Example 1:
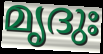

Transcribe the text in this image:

മൃദുഃ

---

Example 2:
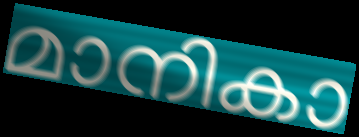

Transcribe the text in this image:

മാനികാ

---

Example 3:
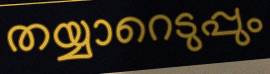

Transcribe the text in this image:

തയ്യാറെടുപ്പും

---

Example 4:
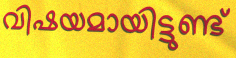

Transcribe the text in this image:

വിഷയമായിട്ടുണ്ട്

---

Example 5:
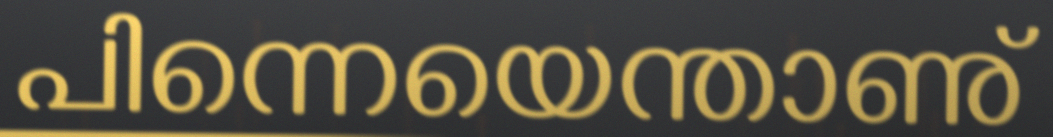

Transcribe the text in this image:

പിന്നെയെന്താണു്